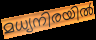
മധ്യനിരയിൽ